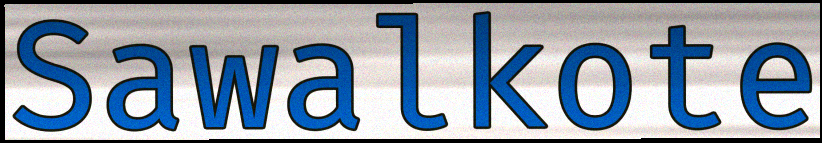
Sawalkote